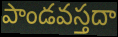
పాండవస్తదా